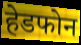
हेडफोन